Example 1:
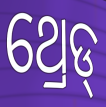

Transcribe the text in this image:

ଥ୍ରେଡ୍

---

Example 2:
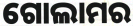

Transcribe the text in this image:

ଗୋଲାମର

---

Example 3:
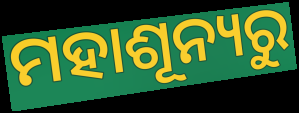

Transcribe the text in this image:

ମହାଶୂନ୍ୟରୁ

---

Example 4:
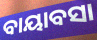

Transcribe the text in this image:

ବାୟାବସା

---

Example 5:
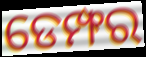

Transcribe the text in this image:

ଡେମ୍ଫର